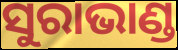
ସୁରାଭାଣ୍ଡ